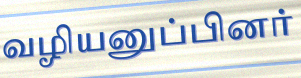
வழியனுப்பினர்